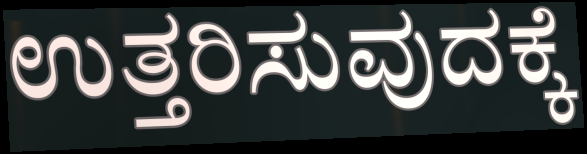
ಉತ್ತರಿಸುವುದಕ್ಕೆ